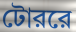
টোররে